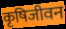
कृषिजीवन